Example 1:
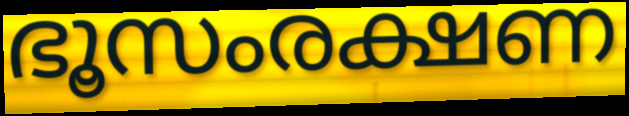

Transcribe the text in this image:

ഭൂസംരക്ഷണ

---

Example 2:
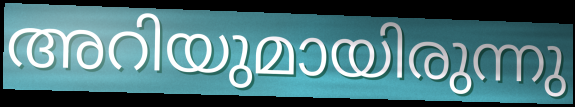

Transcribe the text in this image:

അറിയുമായിരുന്നു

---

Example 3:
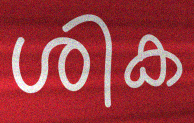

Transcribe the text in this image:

ശിക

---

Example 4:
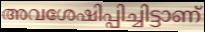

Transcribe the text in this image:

അവശേഷിപ്പിച്ചിട്ടാണ്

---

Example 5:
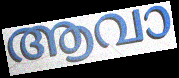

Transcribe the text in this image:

ആവാ